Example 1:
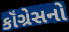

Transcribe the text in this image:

કૉંગ્રેસનો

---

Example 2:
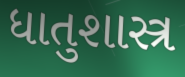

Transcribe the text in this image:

ધાતુશાસ્ત્ર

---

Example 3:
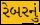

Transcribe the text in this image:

રેબરનું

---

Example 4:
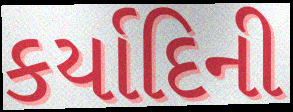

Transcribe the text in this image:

કર્યાદિની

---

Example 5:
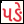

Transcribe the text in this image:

પઙે